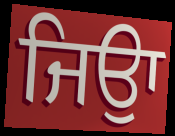
ਜਿਉਾ